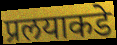
प्रलयाकडे